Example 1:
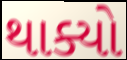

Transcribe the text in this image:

થાક્યો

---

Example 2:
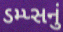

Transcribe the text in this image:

ડમ્પ્સનું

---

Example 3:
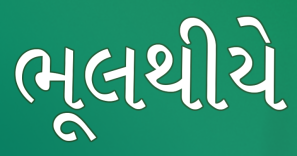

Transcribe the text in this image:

ભૂલથીયે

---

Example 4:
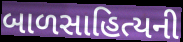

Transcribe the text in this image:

બાળસાહિત્યની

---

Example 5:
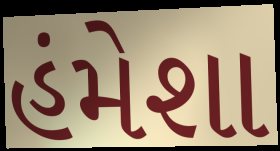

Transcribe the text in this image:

હંમેશા